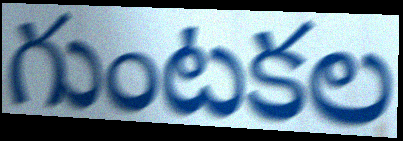
గుంటకల